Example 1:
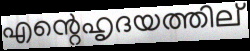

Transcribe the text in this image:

എന്റെഹൃദയത്തില്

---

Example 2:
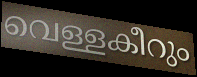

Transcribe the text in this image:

വെള്ളകീറും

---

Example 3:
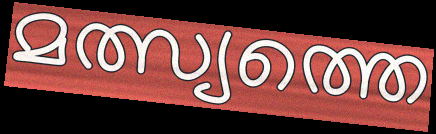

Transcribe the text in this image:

മത്സ്യത്തെ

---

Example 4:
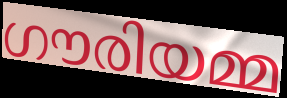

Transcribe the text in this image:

ഗൗരിയമ്മ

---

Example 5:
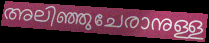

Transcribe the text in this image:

അലിഞ്ഞുചേരാനുള്ള